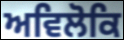
ਅਵਿਲੋਕਿ